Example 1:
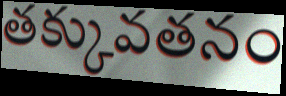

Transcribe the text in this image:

తక్కువతనం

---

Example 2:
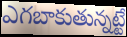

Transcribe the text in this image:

ఎగబాకుతున్నట్టే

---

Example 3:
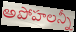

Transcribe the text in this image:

అపోహలన్నీ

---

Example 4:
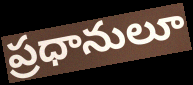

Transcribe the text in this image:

ప్రధానులూ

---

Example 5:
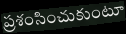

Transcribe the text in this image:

ప్రశంసించుకుంటూ